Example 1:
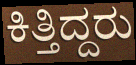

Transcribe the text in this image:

ಕಿತ್ತಿದ್ದರು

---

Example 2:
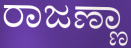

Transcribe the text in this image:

ರಾಜಣ್ಣಾ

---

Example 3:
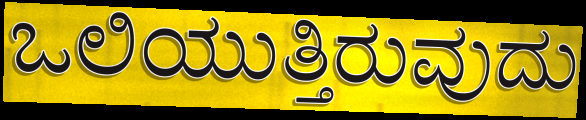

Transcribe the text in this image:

ಒಲಿಯುತ್ತಿರುವುದು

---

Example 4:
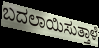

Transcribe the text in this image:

ಬದಲಾಯಿಸುತ್ತಾಳೆ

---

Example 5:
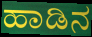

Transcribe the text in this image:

ಹಾಡಿನ